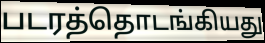
படரத்தொடங்கியது